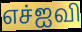
எச்ஐவி